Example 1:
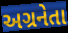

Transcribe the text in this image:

અગ્રનેતા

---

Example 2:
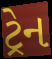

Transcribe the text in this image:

ટ્રેન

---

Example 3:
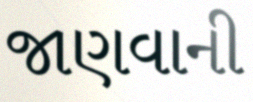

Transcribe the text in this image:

જાણવાની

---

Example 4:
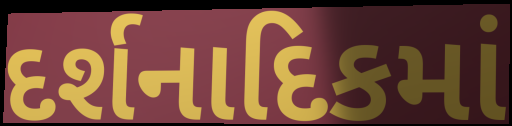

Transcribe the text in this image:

દર્શનાદિકમાં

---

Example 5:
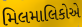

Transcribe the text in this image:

મિલમાલિકોએ